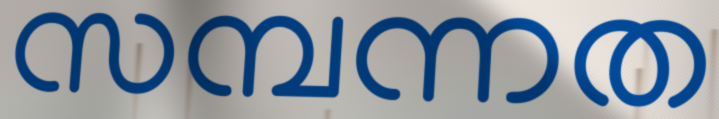
സമ്പന്നത